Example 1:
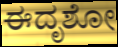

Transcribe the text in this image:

ಈದೃಶೋ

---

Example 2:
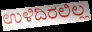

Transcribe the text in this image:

ಉಳಿದಿರಲಿಲ್ಲ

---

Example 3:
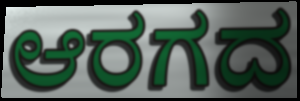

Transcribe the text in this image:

ಆರಗದ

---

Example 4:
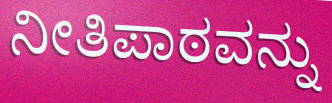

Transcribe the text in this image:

ನೀತಿಪಾಠವನ್ನು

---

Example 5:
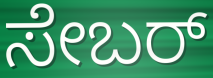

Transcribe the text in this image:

ಸೇಬರ್